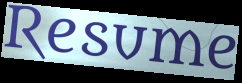
Resume